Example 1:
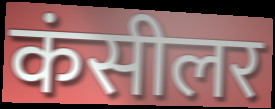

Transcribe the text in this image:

कंसीलर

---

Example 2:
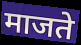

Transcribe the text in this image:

माजते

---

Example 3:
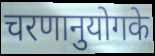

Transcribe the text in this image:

चरणानुयोगके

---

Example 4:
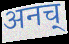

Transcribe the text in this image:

अनच्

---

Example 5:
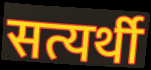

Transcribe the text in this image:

सत्यर्थी